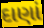
દાણાં